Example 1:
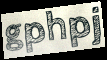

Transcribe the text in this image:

gphpj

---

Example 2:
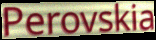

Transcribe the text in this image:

Perovskia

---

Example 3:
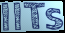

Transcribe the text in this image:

IITs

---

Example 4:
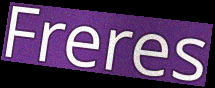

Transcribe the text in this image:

Freres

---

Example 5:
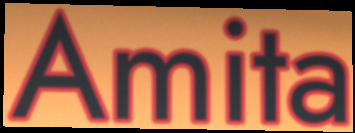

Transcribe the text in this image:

Amita